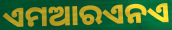
ଏମଆରଏନଏ